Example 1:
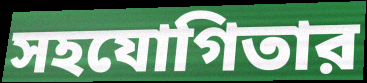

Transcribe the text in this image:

সহযোগিতার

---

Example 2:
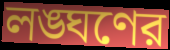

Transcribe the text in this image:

লঙ্ঘণের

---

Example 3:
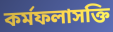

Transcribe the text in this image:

কর্মফলাসক্তি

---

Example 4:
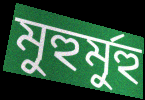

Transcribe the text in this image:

মুহুর্মুহু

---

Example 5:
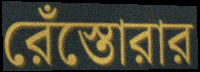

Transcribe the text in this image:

রেঁস্তোরার